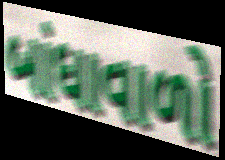
બાંધાવાળો